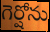
గెర్షోను